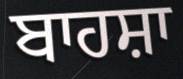
ਬਾਹਸ਼ਾ